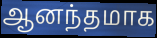
ஆனந்தமாக